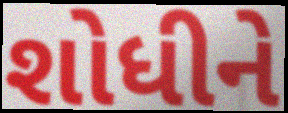
શોધીને